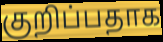
குறிப்பதாக